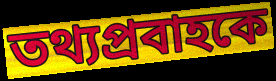
তথ্যপ্রবাহকে